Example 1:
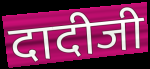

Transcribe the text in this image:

दादीजी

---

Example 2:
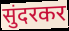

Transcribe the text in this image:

सुंदरकर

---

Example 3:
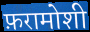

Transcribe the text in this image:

फ़रामोशी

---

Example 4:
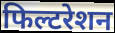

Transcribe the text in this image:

फिल्टरेशन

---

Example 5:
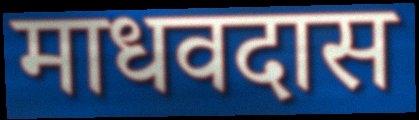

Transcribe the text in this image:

माधवदास